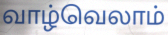
வாழ்வெலாம்